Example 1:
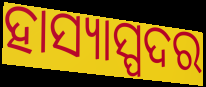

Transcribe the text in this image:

ହାସ୍ୟାସ୍ପଦର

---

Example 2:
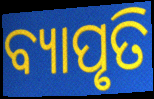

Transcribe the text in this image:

ବ୍ୟାପୃତି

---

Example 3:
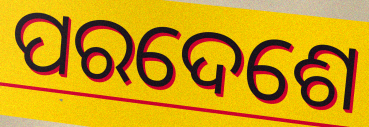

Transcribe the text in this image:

ପରଦେଶେ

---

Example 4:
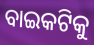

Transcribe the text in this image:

ବାଇକଟିକୁ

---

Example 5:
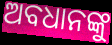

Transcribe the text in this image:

ଅବଧାନଙ୍କୁ